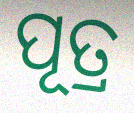
ପୂତ୍ର